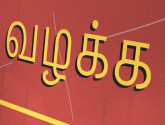
வழக்க